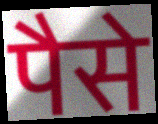
पैसे